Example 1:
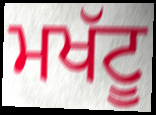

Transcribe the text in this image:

ਮਖੱਟੂ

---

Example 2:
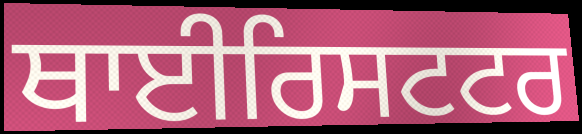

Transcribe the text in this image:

ਥਾਈਰਿਸਟਟਰ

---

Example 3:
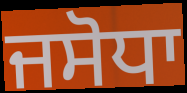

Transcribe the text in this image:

ਜਸੋਧਾ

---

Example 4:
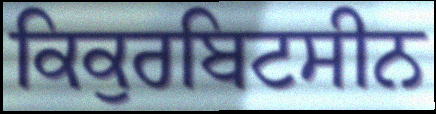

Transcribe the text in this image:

ਕਿਕੁਰਬਿਟਸੀਨ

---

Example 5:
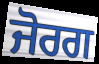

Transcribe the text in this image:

ਜੋਰਗ